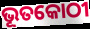
ଭୂତକୋଠୀ